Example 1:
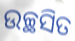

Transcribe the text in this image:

ଉଚ୍ଛସିତ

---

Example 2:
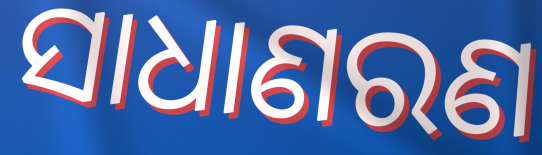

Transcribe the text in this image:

ସାଧାଣରଣ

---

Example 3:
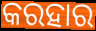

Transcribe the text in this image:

କରହାର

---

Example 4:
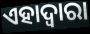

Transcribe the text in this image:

ଏହାଦ୍ୱାରା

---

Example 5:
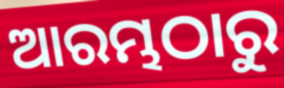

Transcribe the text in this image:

ଆରମ୍ଭଠାରୁ